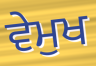
ਵੇਮੁਖ